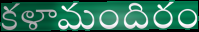
కళామందిరం